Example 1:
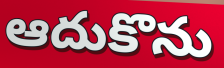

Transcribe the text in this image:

ఆదుకొను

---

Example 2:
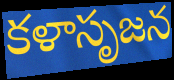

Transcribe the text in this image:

కళాసృజన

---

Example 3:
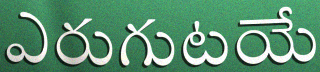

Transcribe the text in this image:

ఎరుగుటయే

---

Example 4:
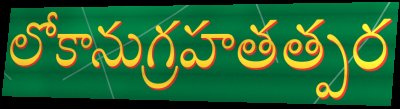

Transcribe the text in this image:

లోకానుగ్రహతత్పర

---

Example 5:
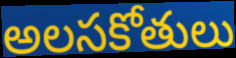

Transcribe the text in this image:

అలసకోతులు